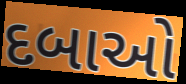
દબાઓ